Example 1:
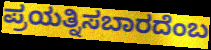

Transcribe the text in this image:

ಪ್ರಯತ್ನಿಸಬಾರದೆಂಬ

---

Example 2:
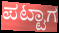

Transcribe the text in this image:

ಪಟ್ಟಾಗ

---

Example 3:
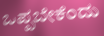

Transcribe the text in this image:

ಒಪ್ಪಬೇಕೆಂದು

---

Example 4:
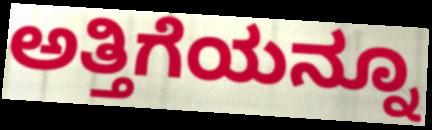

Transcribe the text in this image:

ಅತ್ತಿಗೆಯನ್ನೂ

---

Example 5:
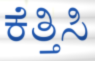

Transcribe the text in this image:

ಕೆತ್ತಿಸಿ